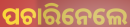
ପଚାରିନେଲେ